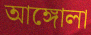
আঙ্গোলা